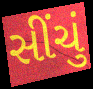
સીંચું